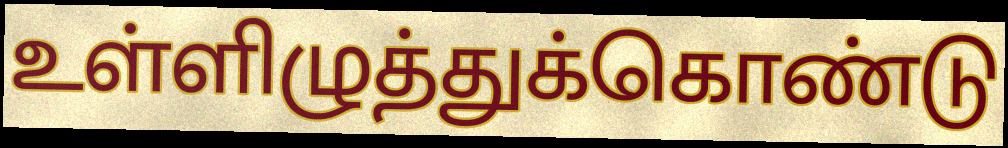
உள்ளிழுத்துக்கொண்டு